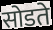
सोडते